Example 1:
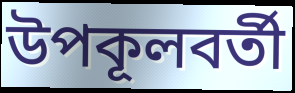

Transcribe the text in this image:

উপকূলবর্তী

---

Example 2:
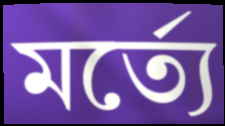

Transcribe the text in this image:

মর্ত্যে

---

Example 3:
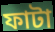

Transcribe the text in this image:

ফাটা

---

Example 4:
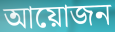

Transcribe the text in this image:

আয়োজন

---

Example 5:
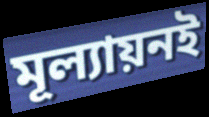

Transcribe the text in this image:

মূল্যায়নই